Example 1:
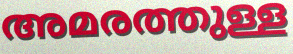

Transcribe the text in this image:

അമരത്തുള്ള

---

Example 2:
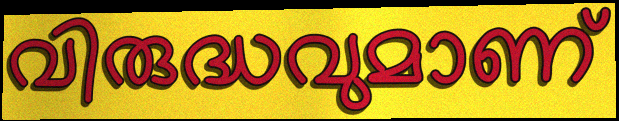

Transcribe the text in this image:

വിരുദ്ധവുമാണ്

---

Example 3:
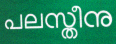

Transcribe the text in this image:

പലസ്തീനു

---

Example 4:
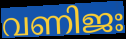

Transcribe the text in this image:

വണിജഃ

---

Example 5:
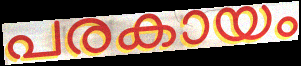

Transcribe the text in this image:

പരകായം